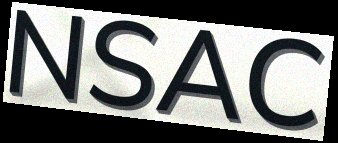
NSAC